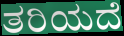
ತರಿಯದೆ